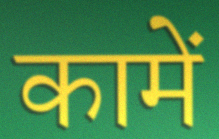
कामें